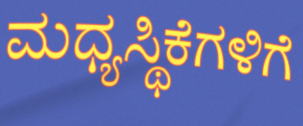
ಮಧ್ಯಸ್ಥಿಕೆಗಳಿಗೆ